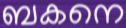
ബകനെ